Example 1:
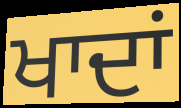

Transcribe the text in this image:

ਖਾਦਾਂ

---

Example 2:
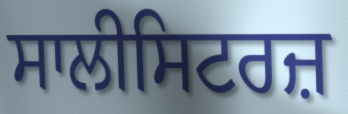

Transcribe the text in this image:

ਸਾਲੀਸਿਟਰਜ਼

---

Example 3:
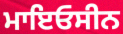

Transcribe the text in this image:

ਮਾਇਓਸੀਨ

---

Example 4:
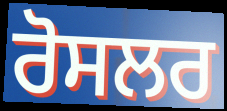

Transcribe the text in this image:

ਰੋਸਲਰ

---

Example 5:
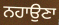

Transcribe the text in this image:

ਨਹਾਉਣਾ